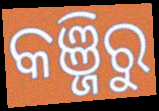
କଞ୍ଜିରୁ